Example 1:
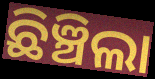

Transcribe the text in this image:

ଛିଞ୍ଚିଲା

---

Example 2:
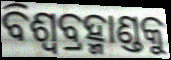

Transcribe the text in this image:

ବିଶ୍ବବ୍ରହ୍ମାଣ୍ଡକୁ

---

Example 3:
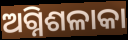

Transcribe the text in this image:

ଅଗ୍ନିଶଳାକା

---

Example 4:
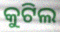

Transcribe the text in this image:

କୁଟିଲ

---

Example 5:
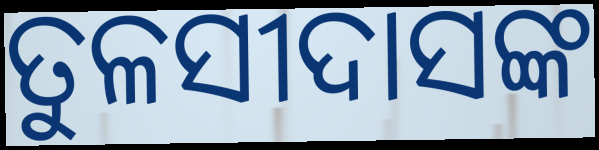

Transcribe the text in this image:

ତୁଳସୀଦାସଙ୍କ